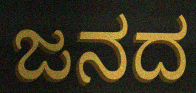
ಜನದ